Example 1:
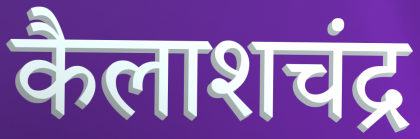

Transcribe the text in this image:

कैलाशचंद्र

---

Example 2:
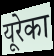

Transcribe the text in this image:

यूरेका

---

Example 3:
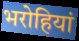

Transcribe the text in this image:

भरोहियां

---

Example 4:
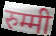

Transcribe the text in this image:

रुम्मी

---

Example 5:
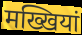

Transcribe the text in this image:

मख्खियां